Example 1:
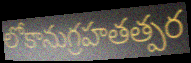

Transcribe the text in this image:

లోకానుగ్రహతత్పర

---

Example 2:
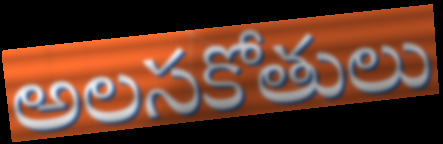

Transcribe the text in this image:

అలసకోతులు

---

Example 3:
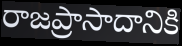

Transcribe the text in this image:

రాజప్రాసాదానికి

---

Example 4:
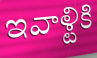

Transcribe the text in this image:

ఇవాళ్టికి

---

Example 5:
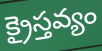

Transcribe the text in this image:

క్రైస్తవ్యం